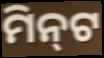
ମିନ୍‌ଟ